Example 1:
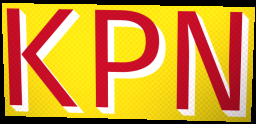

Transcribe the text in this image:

KPN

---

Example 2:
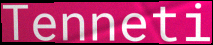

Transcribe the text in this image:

Tenneti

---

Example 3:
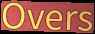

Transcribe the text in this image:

Overs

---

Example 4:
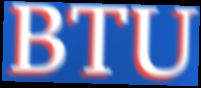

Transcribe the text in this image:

BTU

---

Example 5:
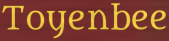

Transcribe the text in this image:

Toyenbee